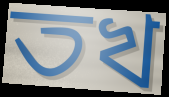
তখ